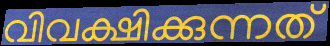
വിവക്ഷിക്കുന്നത്